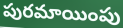
పురమాయింపు